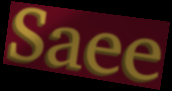
Saee